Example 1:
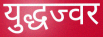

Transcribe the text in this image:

युद्धज्वर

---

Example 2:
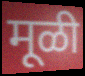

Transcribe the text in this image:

मूळी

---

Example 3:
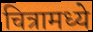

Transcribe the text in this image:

चित्रामध्ये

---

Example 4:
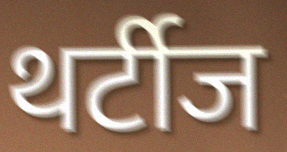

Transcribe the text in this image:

थर्टीज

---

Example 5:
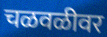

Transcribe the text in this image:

चळवळीवर